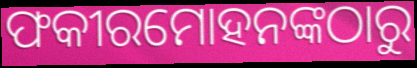
ଫକୀରମୋହନଙ୍କଠାରୁ